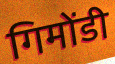
गिमोंडी